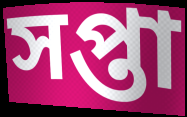
সপ্তা